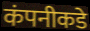
कंपनीकडे